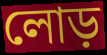
লোড়